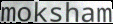
moksham